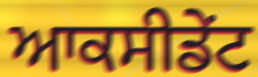
ਆਕਸੀਡੇਂਟ